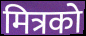
मित्रको